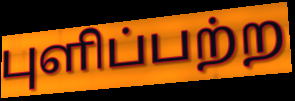
புளிப்பற்ற